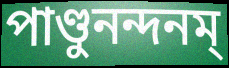
পাণ্ডুনন্দনম্